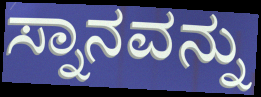
ಸ್ನಾನವನ್ನು